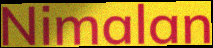
Nimalan